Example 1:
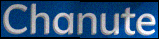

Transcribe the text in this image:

Chanute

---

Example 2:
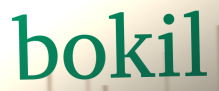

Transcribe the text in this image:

bokil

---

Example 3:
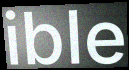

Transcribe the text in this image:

ible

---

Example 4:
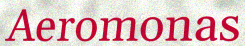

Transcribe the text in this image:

Aeromonas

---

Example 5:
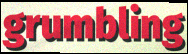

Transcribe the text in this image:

grumbling